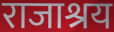
राजाश्रय